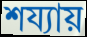
শয্যায়